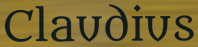
Claudius